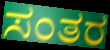
ಸಂತರ